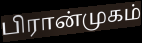
பிரான்முகம்